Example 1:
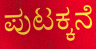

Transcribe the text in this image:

ಪುಟಕ್ಕನೆ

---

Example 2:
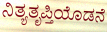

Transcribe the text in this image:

ನಿತ್ಯತೃಪ್ತಿಯೊಡನೆ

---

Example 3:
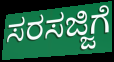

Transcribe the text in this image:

ಸರಸಜ್ಜಿಗೆ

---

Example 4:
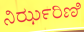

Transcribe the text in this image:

ನಿರ್ಝರಿಣಿ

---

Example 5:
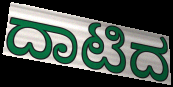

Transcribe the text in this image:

ದಾಟಿದ